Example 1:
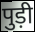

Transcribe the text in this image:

पुड़ी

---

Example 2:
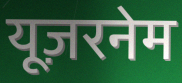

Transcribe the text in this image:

यूज़रनेम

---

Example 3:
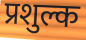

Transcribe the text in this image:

प्रशुल्क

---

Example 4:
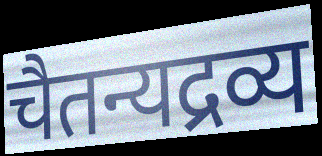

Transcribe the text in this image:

चैतन्यद्रव्य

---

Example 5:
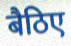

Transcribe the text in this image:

बैठिए